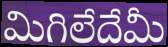
మిగిలేదేమీ